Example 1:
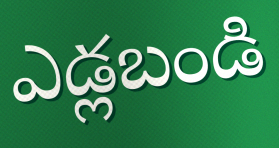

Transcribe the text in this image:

ఎడ్లబండి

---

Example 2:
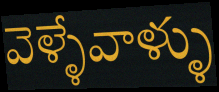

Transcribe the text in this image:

వెళ్ళేవాళ్ళు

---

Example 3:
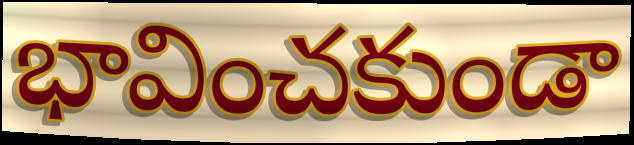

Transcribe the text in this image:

భావించకుండా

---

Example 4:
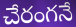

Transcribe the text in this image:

చేరంగనే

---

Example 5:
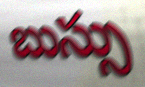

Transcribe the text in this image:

బుస్సు